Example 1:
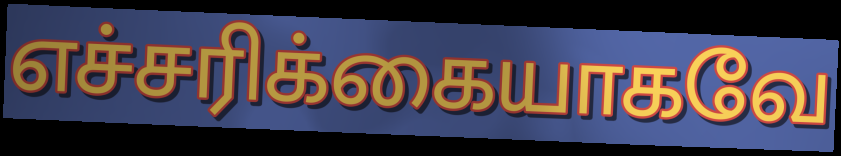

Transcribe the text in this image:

எச்சரிக்கையாகவே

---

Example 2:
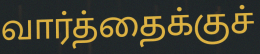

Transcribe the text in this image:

வார்த்தைக்குச்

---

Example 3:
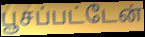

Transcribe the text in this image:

பூசப்பட்டேன்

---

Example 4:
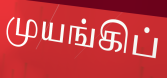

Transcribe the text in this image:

முயங்கிப்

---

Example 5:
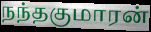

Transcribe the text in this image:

நந்தகுமாரன்